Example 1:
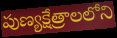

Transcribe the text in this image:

పుణ్యక్షేత్రాలలోని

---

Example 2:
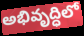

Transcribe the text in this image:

అభివృద్ధిలో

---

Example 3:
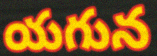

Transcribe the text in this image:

యగున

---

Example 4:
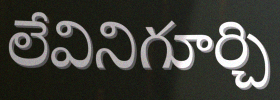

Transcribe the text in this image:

లేవినిగూర్చి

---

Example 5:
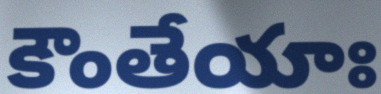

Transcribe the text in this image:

కౌంతేయాః